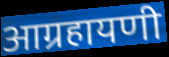
आग्रहायणी